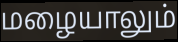
மழையாலும்